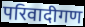
परिवादीगण